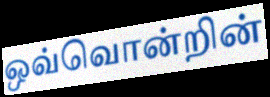
ஒவ்வொன்றின்